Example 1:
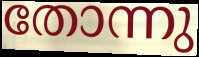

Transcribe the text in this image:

തോന്നു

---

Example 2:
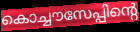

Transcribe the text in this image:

കൊച്ചൗസേപ്പിന്റെ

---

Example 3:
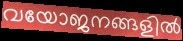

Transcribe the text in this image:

വയോജനങ്ങളിൽ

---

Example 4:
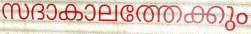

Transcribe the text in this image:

സദാകാലത്തേക്കും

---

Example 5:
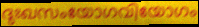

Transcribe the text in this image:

ദുഃഖസംയോഗവിയോഗം